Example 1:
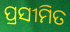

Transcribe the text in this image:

ପ୍ରସୀମିତ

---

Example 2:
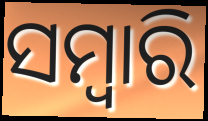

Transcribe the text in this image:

ସମ୍ବାରି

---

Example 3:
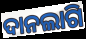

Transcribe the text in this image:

ଦାନଲାଗି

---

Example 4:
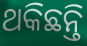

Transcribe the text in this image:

ଥକିଛନ୍ତି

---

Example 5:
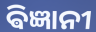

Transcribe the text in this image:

ଵିଜ୍ଞାନୀ